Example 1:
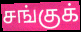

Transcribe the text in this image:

சங்குக்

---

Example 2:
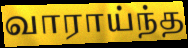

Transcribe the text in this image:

வாராய்ந்த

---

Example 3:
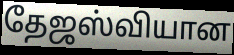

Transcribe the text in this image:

தேஜஸ்வியான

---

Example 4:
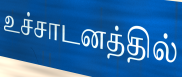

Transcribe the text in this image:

உச்சாடனத்தில்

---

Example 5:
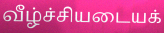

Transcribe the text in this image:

வீழ்ச்சியடையக்